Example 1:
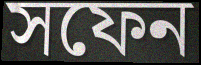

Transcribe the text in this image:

সফেন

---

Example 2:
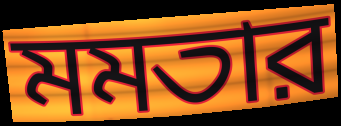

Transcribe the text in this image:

মমতার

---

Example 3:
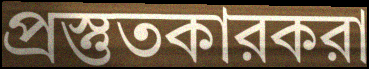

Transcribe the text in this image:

প্রস্তুতকারকরা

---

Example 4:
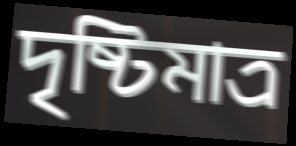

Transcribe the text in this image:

দৃষ্টিমাত্র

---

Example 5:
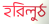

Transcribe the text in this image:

হরিলুঠ